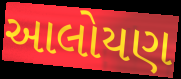
આલોયણ